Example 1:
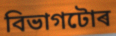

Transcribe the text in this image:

বিভাগটোৰ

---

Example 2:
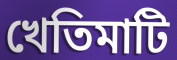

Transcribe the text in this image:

খেতিমাটি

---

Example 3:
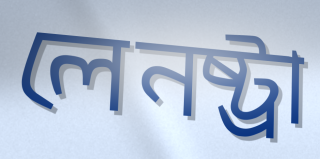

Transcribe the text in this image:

লেনষ্ট্ৰা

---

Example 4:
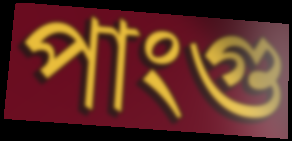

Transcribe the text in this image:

পাংগু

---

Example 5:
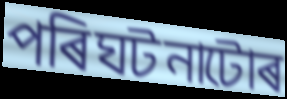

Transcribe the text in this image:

পৰিঘটনাটোৰ